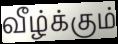
வீழ்க்கும்